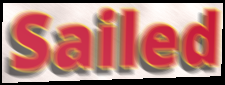
Sailed